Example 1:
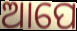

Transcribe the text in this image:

ଆପେ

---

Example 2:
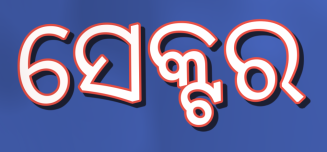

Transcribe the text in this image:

ସେକ୍ଟର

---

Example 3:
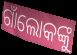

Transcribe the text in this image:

ଗାଁଲୋକଙ୍କୁ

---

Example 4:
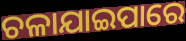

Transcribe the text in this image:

ଚଳାଯାଇପାରେ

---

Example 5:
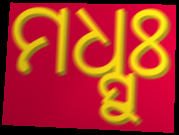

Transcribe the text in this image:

ମଧ୍ସୁଃ